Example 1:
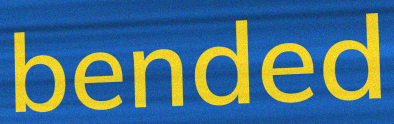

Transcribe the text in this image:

bended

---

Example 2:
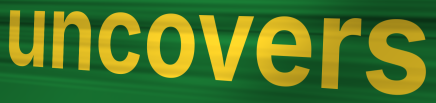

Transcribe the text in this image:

uncovers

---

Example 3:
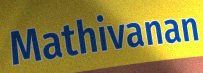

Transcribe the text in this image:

Mathivanan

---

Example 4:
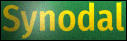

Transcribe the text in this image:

Synodal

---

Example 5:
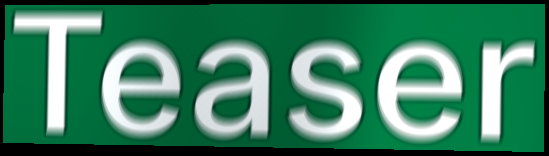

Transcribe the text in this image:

Teaser